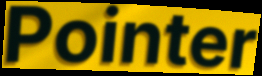
Pointer